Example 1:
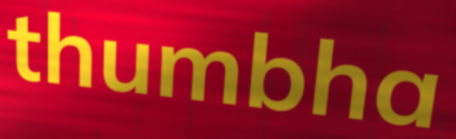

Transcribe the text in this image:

thumbha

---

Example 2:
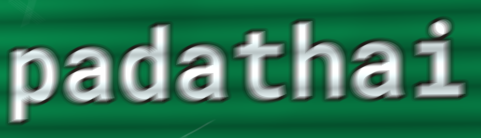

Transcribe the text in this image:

padathai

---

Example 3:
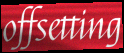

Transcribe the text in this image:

offsetting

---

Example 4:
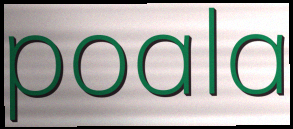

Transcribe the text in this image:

poala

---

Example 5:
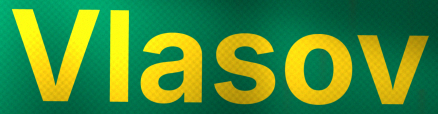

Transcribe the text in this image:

Vlasov